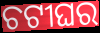
ଚଟୀଘର